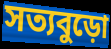
সত্যবুড়ো